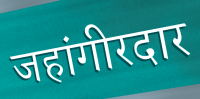
जहांगीरदार